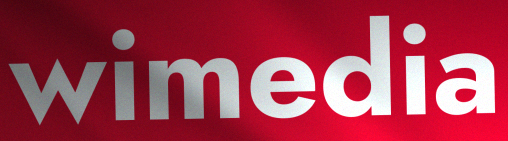
wimedia